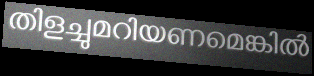
തിളച്ചുമറിയണമെങ്കിൽ